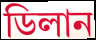
ডিলান